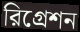
রিগ্রেশন